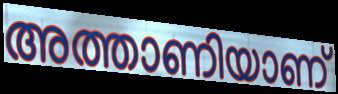
അത്താണിയാണ്